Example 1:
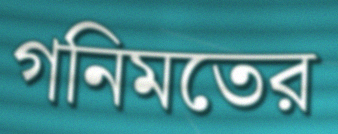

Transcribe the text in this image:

গনিমতের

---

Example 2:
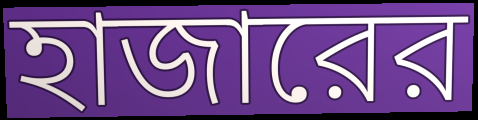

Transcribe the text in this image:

হাজারের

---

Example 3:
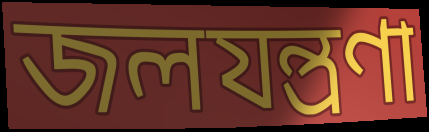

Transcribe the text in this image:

জলযন্ত্রণা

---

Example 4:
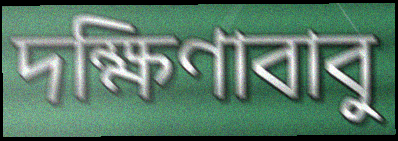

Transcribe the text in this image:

দক্ষিণাবাবু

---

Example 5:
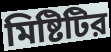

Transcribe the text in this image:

মিষ্টিটির